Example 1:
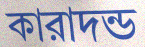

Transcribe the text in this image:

কারাদন্ড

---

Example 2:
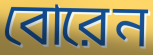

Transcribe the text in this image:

বোরেন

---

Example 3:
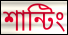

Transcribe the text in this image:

শান্টিং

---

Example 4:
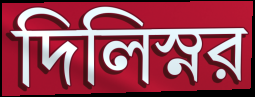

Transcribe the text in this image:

দিলিস্নর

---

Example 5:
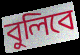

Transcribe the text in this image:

বুলিবে